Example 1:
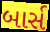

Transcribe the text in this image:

બાર્સ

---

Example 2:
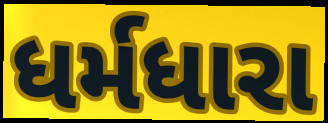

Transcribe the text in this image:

ધર્મધારા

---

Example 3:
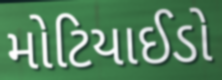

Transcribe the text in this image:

મોટિયાઈડો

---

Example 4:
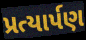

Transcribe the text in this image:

પ્રત્યાર્પણ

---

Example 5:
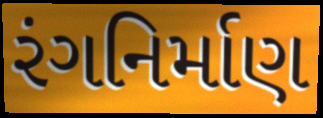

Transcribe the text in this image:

રંગનિર્માણ